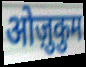
ओज़ुकुम